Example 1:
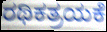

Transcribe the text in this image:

ರಥಿಕತ್ರಯಕೆ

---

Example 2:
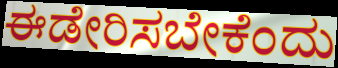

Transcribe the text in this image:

ಈಡೇರಿಸಬೇಕೆಂದು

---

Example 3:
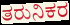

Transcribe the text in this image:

ತರುನಿಕರ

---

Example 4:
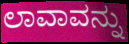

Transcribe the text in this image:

ಲಾವಾವನ್ನು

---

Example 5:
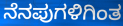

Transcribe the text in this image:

ನೆನಪುಗಳಿಗಿಂತ